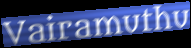
Vairamuthu